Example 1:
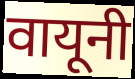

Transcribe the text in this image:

वायूनी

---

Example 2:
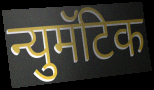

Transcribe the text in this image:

न्युमॅटिक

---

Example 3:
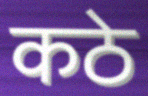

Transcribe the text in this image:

कठे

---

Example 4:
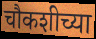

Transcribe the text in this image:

चौकशीच्या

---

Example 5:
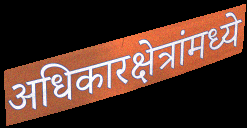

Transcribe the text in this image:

अधिकारक्षेत्रांमध्ये